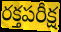
రక్తపరీక్ష